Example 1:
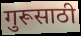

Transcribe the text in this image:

गुरूसाठी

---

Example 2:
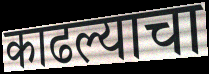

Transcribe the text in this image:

काढल्याचा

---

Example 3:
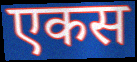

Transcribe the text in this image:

एकस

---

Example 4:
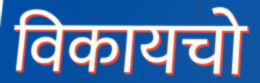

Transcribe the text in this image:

विकायचो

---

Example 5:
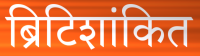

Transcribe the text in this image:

ब्रिटिशांकित